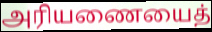
அரியணையைத்